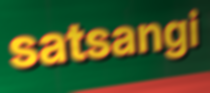
satsangi